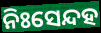
ନିଃସେନ୍ଦହ